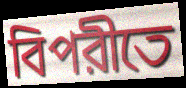
বিপরীতে